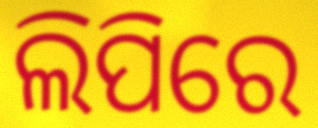
ଲିପିରେ